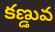
కణ్డువ